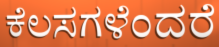
ಕೆಲಸಗಳೆಂದರೆ